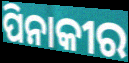
ପିନାକୀର